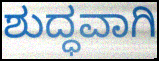
ಶುದ್ಧವಾಗಿ